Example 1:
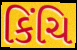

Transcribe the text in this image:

કિંચિ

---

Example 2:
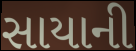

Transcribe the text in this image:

સાયાની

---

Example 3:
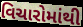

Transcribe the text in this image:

વિચારોમાંથી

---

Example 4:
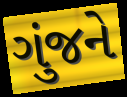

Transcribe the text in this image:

ગુંજને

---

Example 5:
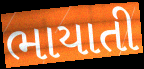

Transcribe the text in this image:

ભાયાતી